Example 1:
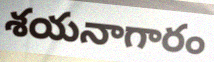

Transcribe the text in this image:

శయనాగారం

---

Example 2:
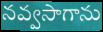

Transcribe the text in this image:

నవ్వసాగాను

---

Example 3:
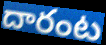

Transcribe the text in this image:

దారంట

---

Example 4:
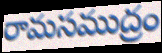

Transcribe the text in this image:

రామసముద్రం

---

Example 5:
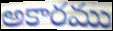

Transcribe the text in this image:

అకారము